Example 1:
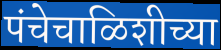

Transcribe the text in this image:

पंचेचाळिशीच्या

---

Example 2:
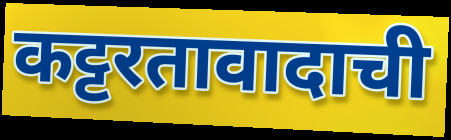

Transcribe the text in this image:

कट्टरतावादाची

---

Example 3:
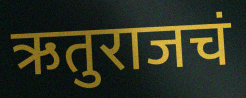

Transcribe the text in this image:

ऋतुराजचं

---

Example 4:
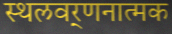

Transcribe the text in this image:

स्थलवर्णनात्मक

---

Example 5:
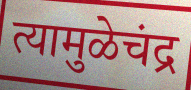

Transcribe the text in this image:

त्यामुळेचंद्र